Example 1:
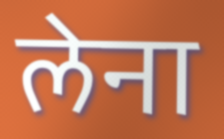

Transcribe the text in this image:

लेना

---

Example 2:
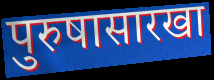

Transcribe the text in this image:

पुरुषासारखा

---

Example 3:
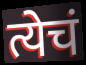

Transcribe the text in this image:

त्येचं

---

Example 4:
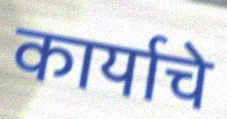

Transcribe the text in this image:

कार्याचे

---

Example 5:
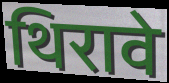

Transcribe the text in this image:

थिरावे